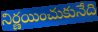
నిర్ణయించుకునేది